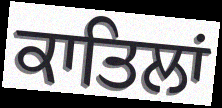
ਕਾਤਿਲਾਂ